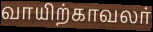
வாயிற்காவலர்